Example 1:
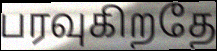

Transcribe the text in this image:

பரவுகிறதே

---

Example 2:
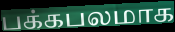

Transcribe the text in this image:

பக்கபலமாக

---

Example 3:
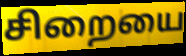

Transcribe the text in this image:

சிறையை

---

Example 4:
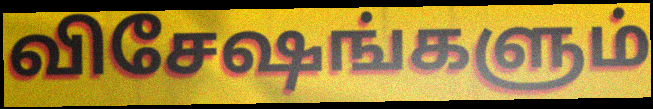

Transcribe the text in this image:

விசேஷங்களும்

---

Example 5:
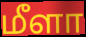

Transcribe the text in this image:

மீளா